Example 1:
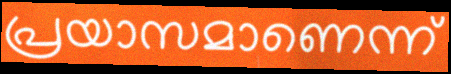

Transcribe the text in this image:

പ്രയാസമാണെന്ന്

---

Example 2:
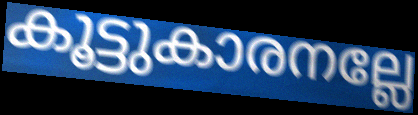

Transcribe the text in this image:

കൂട്ടുകാരനല്ലേ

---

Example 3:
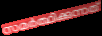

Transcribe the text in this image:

സമർത്ഥിക്കുന്നത്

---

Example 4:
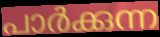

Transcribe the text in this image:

പാർക്കുന്ന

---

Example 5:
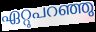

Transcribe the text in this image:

ഏറ്റുപറഞ്ഞു